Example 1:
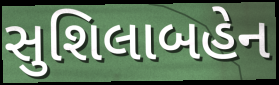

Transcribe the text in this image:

સુશિલાબહેન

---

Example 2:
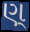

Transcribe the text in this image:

ણ્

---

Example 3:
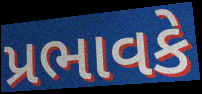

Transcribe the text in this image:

પ્રભાવકે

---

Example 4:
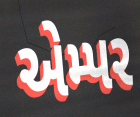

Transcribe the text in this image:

એમ્પર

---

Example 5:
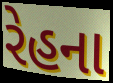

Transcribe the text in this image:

રેહના